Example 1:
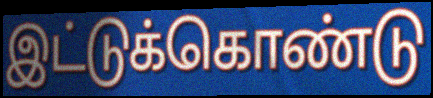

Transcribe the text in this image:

இட்டுக்கொண்டு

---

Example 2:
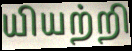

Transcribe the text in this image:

யியற்றி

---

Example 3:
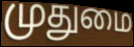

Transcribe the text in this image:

முதுமை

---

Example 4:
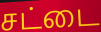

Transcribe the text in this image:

சட்டை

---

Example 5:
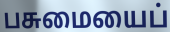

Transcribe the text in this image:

பசுமையைப்